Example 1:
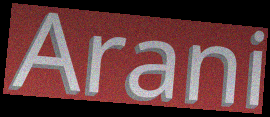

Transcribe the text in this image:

Arani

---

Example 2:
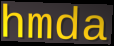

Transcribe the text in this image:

hmda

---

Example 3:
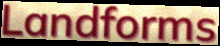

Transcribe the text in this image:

Landforms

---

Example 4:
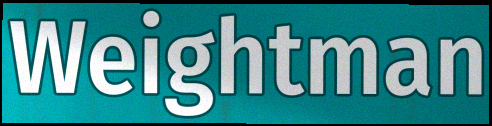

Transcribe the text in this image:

Weightman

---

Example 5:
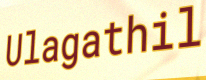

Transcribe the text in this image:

Ulagathil